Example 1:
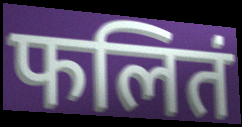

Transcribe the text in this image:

फलितं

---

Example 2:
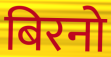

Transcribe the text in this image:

बिरनो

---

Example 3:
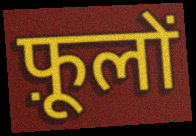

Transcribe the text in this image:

फ़ूलों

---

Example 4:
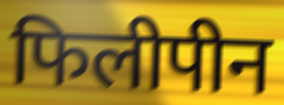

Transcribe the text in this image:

फिलीपीन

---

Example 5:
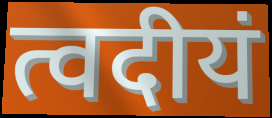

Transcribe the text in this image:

त्वदीयं